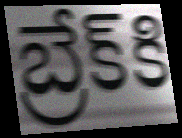
బ్రేక్‌కి